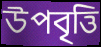
উপবৃত্তি